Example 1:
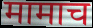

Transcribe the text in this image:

मामाच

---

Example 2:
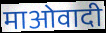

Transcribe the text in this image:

माओवादी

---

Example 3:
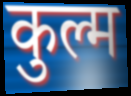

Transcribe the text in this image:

कुल्म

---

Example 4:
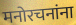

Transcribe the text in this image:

मनोरचनांना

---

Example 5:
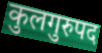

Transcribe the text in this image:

कुलगुरुपद